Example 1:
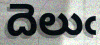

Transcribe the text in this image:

దెలుఁ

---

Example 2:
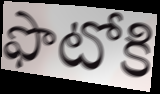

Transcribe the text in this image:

ఫొటోకి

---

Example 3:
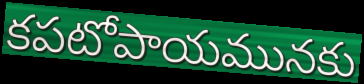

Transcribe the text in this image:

కపటోపాయమునకు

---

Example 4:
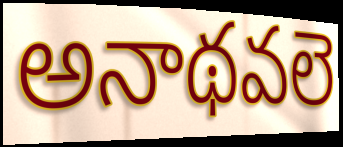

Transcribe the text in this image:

అనాథవలె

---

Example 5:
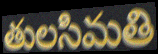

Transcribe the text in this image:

తులసిమతి